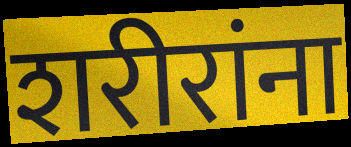
शरीरांना